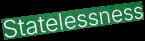
Statelessness